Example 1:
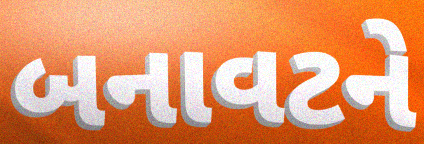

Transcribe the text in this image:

બનાવટને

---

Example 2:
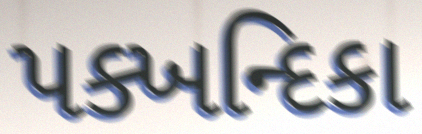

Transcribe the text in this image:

પક્ખન્દિકા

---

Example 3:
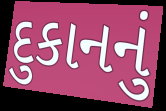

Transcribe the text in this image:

દુકાનનું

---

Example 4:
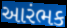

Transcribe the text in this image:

આરંભક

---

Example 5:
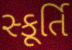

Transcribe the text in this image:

સ્કૂર્તિ